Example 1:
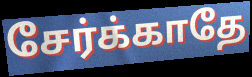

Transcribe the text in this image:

சேர்க்காதே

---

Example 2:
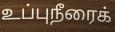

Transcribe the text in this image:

உப்புநீரைக்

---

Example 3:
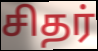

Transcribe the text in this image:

சிதர்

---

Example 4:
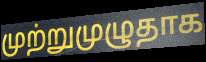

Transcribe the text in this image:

முற்றுமுழுதாக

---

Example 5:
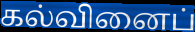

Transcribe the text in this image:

கல்வினைப்